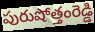
పురుషోత్తంరెడ్డి